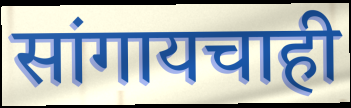
सांगायचाही